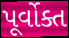
પૂર્વોક્ત